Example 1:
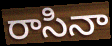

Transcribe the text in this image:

రాసినా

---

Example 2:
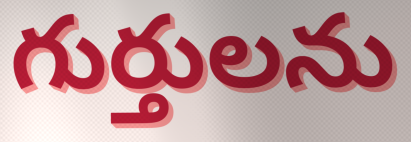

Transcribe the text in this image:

గుర్తులను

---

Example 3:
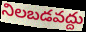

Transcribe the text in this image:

నిలబడవద్దు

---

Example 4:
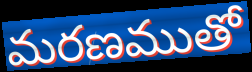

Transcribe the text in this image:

మరణముతో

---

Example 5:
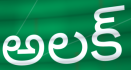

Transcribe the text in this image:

అలక్